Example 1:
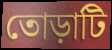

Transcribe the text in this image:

তোড়াটি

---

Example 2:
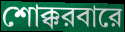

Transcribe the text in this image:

শোক্করবারে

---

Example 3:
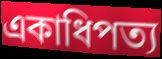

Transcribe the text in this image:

একাধিপত্য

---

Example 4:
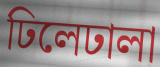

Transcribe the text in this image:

ঢিলেঢালা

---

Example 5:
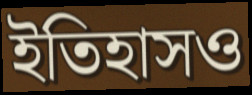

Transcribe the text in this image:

ইতিহাসও